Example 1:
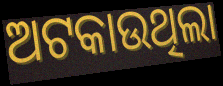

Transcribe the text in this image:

ଅଟକାଉଥିଲା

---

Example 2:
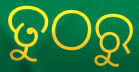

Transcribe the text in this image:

ତୁଠରୁ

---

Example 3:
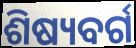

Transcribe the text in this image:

ଶିଷ୍ୟବର୍ଗ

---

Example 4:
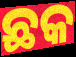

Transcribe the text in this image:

ଛକ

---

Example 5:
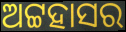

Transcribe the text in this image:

ଅଟ୍ଟହାସର